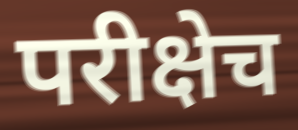
परीक्षेच